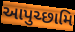
આપુચ્છામિ